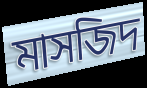
মাসজিদ